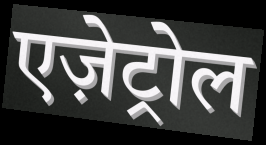
एज़ेट्रोल